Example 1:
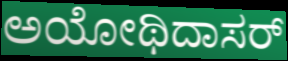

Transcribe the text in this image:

ಅಯೋಥಿದಾಸರ್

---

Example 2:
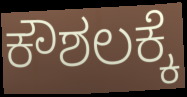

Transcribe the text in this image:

ಕೌಶಲಕ್ಕೆ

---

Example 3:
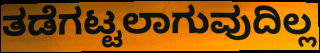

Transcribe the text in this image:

ತಡೆಗಟ್ಟಲಾಗುವುದಿಲ್ಲ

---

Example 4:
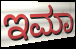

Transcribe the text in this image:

ಇಮಾ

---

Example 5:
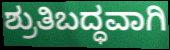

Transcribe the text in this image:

ಶ್ರುತಿಬದ್ಧವಾಗಿ